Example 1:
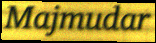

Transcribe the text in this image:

Majmudar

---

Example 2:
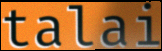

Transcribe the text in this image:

talai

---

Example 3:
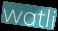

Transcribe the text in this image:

watli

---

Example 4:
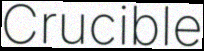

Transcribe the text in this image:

Crucible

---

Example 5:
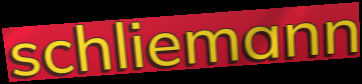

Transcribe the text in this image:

schliemann